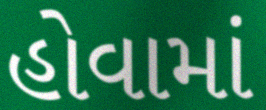
હોવામાં